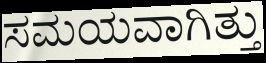
ಸಮಯವಾಗಿತ್ತು